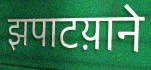
झपाटय़ाने